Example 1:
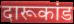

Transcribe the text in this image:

दारूकांड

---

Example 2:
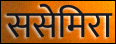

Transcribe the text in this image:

ससेमिरा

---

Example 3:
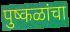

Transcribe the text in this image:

पुष्कळांचा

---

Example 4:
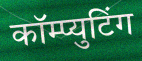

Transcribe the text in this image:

कॉम्प्युटिंग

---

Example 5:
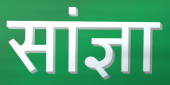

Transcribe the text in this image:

सांज्ञा